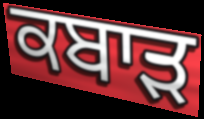
ਕਬਾੜ